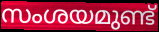
സംശയമുണ്ട്